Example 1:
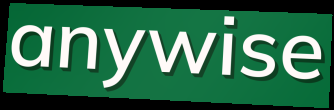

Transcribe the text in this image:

anywise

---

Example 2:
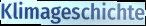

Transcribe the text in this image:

Klimageschichte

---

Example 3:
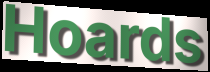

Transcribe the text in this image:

Hoards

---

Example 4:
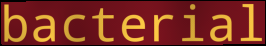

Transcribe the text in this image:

bacterial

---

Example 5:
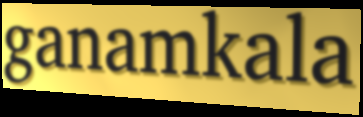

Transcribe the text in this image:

ganamkala